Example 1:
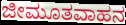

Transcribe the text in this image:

ಜೀಮೂತವಾಹನ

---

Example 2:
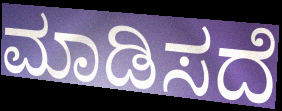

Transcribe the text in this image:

ಮಾಡಿಸದೆ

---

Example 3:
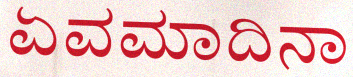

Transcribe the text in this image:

ಏವಮಾದಿನಾ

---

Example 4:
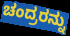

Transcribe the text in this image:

ಚಂದ್ರರನ್ನು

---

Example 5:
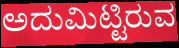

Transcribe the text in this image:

ಅದುಮಿಟ್ಟಿರುವ